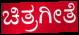
ಚಿತ್ರಗೀತೆ